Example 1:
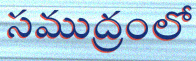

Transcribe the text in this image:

సముద్రంలో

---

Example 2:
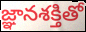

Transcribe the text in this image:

జ్ఞానశక్తితో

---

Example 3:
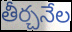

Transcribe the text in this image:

తీర్చనేల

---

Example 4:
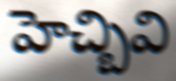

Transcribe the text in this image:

హెచ్బివి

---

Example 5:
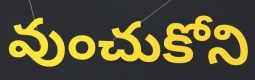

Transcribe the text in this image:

వుంచుకోని